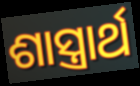
ଶାସ୍ତ୍ରାର୍ଥ